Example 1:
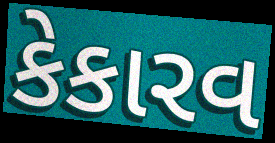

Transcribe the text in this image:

કેકારવ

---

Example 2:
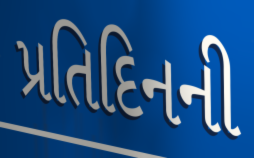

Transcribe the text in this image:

પ્રતિદિનની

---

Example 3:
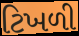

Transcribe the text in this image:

ટિખળી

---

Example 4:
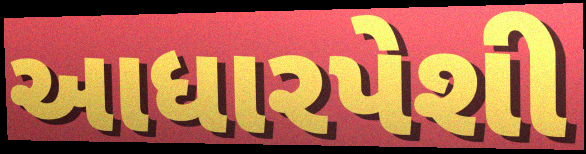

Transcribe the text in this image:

આધારપેશી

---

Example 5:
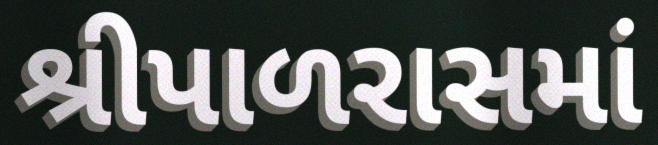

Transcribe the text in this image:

શ્રીપાળરાસમાં